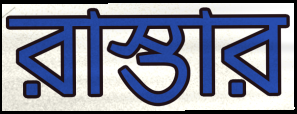
রাস্তার